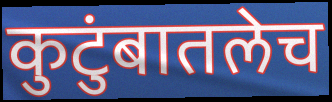
कुटुंबातलेच